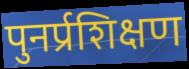
पुनर्प्रशिक्षण